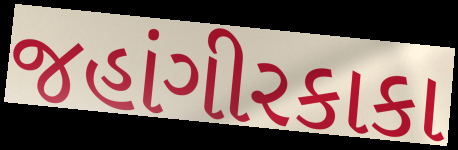
જહાંગીરકાકા